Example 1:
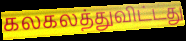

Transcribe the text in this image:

கலகலத்துவிட்டது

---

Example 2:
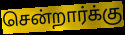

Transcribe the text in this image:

சென்றார்க்கு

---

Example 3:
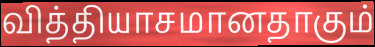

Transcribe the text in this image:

வித்தியாசமானதாகும்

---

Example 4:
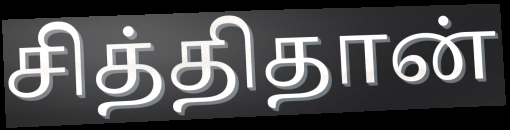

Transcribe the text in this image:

சித்திதான்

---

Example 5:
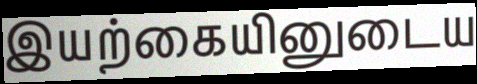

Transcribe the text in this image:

இயற்கையினுடைய